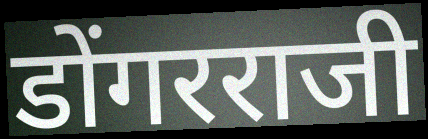
डोंगरराजी